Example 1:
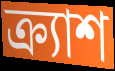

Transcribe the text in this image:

ক্র্যাশ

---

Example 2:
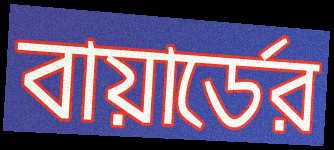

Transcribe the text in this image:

বায়ার্ডের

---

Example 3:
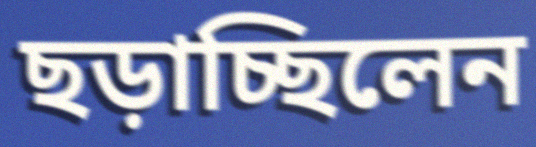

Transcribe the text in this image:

ছড়াচ্ছিলেন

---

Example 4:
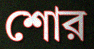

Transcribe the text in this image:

শোর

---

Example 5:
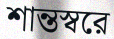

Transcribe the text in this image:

শান্তস্বরে